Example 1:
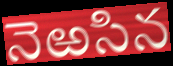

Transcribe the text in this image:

నెఱసిన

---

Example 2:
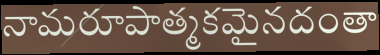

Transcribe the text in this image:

నామరూపాత్మకమైనదంతా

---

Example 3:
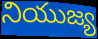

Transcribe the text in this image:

నియుజ్య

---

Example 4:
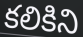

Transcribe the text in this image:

కలికిని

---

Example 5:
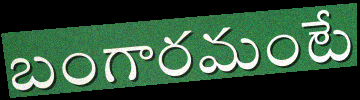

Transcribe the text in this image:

బంగారమంటే